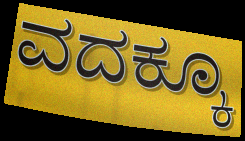
ವದಕ್ಕೂ